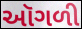
ઑગળી